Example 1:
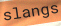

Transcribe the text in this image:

slangs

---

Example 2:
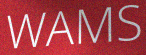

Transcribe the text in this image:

WAMS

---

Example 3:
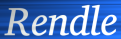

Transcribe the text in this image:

Rendle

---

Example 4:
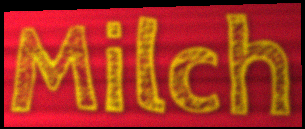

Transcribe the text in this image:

Milch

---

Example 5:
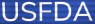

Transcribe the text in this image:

USFDA